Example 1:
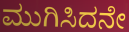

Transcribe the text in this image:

ಮುಗಿಸಿದನೇ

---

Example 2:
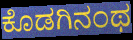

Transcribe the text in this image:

ಕೊಡಗಿನಂಥ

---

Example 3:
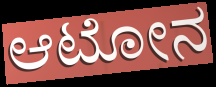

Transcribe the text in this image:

ಆಟೋನ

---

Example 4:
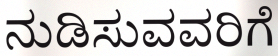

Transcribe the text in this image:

ನುಡಿಸುವವರಿಗೆ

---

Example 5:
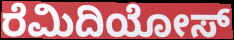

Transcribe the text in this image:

ರೆಮಿದಿಯೋಸ್